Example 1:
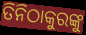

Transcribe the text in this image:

ତିନିଠାକୁରଙ୍କୁ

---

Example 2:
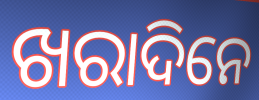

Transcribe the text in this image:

ଖରାଦିନେ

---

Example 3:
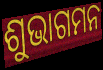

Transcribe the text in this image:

ଶୁଭାଗମନ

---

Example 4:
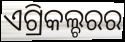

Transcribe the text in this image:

ଏଗ୍ରିକଲ୍ଚରର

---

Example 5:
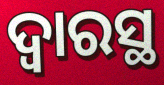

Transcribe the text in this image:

ଦ୍ବାରସ୍ଥ